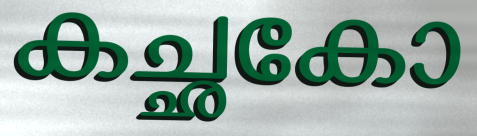
കച്ഛകോ